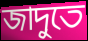
জাদুতে